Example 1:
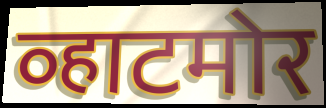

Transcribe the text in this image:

व्हाटमोर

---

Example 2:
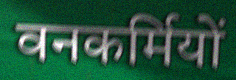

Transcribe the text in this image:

वनकर्मियों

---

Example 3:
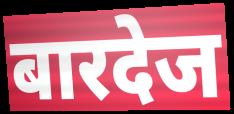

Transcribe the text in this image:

बारदेज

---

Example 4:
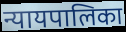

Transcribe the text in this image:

न्यायपालिका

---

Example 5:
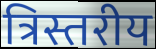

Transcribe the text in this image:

त्रिस्तरीय